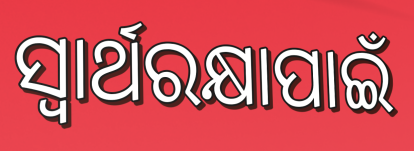
ସ୍ବାର୍ଥରକ୍ଷାପାଇଁ